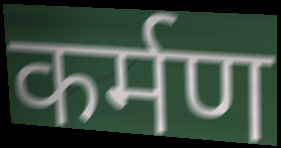
कर्मण